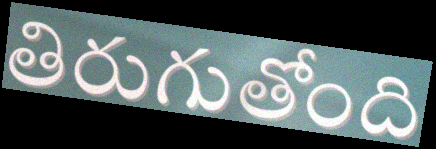
తిరుగుతోంది